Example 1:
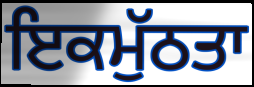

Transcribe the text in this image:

ਇਕਮੁੱਠਤਾ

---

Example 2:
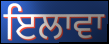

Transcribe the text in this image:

ਇਲਾਵਾ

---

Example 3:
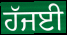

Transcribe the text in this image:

ਹੱਜਈ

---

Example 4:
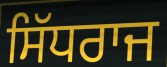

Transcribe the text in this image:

ਸਿੱਧਰਾਜ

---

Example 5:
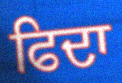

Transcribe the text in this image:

ਫਿਦਾ